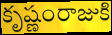
కృష్ణంరాజుకి